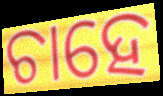
ଚାହେ